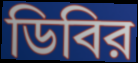
ডিবির